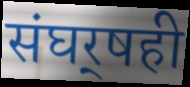
संघर्षही